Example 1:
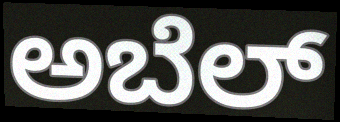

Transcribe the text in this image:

ಅಬೆಲ್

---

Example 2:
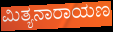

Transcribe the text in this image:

ಮಿತ್ಯನಾರಾಯಣ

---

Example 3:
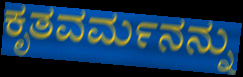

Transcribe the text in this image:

ಕೃತವರ್ಮನನ್ನು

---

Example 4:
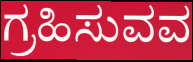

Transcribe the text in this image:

ಗ್ರಹಿಸುವವ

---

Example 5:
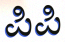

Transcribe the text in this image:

ಪಿಪಿ